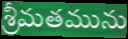
శ్రీమతమును